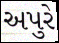
અપુરે